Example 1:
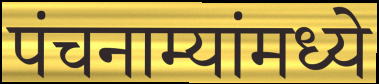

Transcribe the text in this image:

पंचनाम्यांमध्ये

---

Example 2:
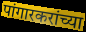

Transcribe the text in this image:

पांगारकरांच्या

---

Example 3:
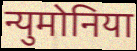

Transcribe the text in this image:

न्युमोनिया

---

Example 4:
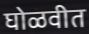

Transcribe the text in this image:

घोळवीत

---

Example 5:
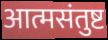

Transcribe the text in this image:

आत्मसंतुष्ट